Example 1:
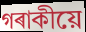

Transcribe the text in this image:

গৰাকীয়ে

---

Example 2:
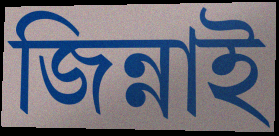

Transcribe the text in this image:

জিন্নাই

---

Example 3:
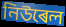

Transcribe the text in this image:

নিউৰেল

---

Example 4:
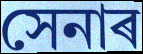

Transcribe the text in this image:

সেনাৰ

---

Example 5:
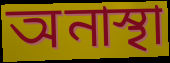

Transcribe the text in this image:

অনাস্থা